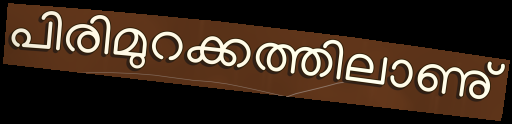
പിരിമുറക്കത്തിലാണു്